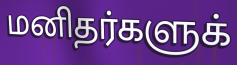
மனிதர்களுக்